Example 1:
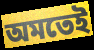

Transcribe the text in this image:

অমতেই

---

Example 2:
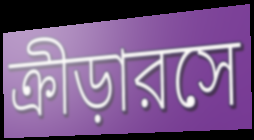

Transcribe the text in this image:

ক্রীড়ারসে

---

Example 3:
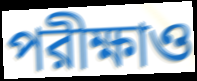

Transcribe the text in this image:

পরীক্ষাও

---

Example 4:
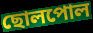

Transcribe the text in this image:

ছোলপোল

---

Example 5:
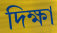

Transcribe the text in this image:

দিক্ষা